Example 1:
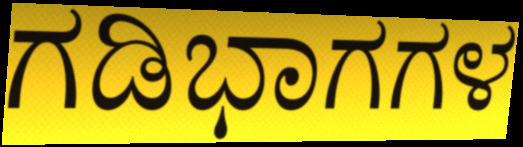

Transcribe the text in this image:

ಗಡಿಭಾಗಗಳ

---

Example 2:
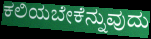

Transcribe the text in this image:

ಕಲಿಯಬೇಕೆನ್ನುವುದು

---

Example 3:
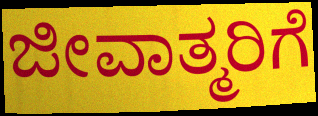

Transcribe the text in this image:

ಜೀವಾತ್ಮರಿಗೆ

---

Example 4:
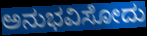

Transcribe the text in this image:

ಅನುಭವಿಸೋದು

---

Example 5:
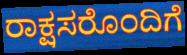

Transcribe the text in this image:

ರಾಕ್ಷಸರೊಂದಿಗೆ